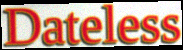
Dateless